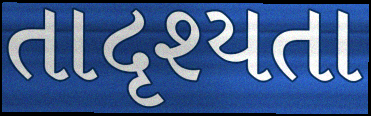
તાદૃશ્યતા